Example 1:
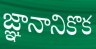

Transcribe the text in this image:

జ్ఞానానికొక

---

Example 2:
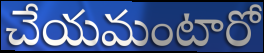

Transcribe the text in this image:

చేయమంటారో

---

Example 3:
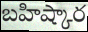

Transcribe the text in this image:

బహిష్కార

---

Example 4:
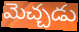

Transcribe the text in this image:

మెచ్చడు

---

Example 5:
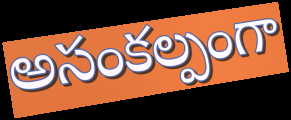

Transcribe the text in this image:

అసంకల్పంగా